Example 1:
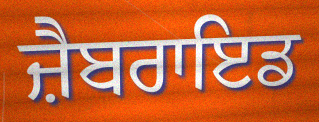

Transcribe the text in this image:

ਜ਼ੈਬਰਾਇਡ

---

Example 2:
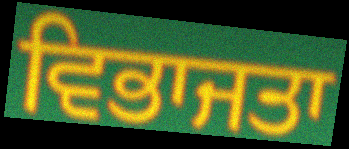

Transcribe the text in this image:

ਵਿਭਾਜਤਾ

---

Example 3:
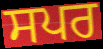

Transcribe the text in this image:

ਸਪਰ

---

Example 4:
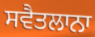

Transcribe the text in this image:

ਸਵੈਤਲਾਨਾ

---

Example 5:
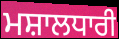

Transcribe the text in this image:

ਮਸ਼ਾਲਧਾਰੀ